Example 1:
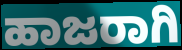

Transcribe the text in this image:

ಹಾಜರಾಗಿ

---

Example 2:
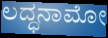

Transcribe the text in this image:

ಲದ್ಧನಾಮೋ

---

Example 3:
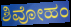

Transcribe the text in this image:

ಶಿವೋಹಂ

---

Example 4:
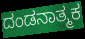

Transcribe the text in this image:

ದಂಡನಾತ್ಮಕ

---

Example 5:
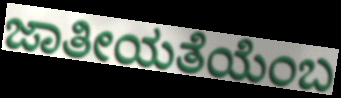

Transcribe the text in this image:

ಜಾತೀಯತೆಯೆಂಬ